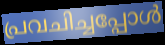
പ്രവചിച്ചപ്പോൾ